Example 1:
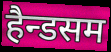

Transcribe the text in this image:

हैन्डसम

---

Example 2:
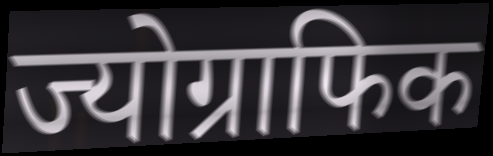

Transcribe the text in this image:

ज्योग्राफिक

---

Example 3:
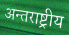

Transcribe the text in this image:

अन्तराष्ट्रीय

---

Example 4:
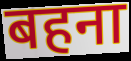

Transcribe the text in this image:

बहना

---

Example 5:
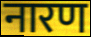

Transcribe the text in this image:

नारण